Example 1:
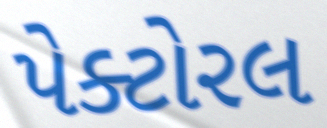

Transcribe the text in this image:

પેક્ટોરલ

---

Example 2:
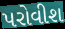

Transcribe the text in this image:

પરોવીશ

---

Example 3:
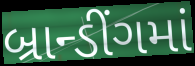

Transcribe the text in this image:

બ્રાન્ડીંગમાં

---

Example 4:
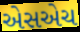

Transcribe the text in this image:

એસએચ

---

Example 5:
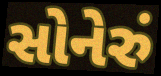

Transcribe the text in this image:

સોનેરું